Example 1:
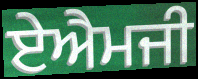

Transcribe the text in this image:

ਏਐਮਜੀ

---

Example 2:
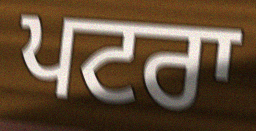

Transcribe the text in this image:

ਪਟਰਾ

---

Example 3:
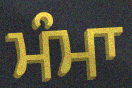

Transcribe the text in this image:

ਮੰਮਾ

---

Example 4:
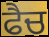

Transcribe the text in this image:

ਫੈਚ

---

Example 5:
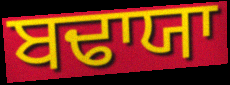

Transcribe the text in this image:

ਬਢਾਯਾ